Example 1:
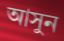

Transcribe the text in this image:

আসুন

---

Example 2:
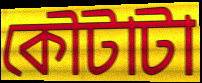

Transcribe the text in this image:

কৌটাটা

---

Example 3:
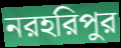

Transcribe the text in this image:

নরহরিপুর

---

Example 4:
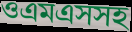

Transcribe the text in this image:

ওএমএসসহ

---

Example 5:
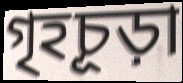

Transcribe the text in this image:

গৃহচূড়া